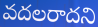
వదలరాదని